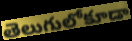
తెలుగులోకూడా